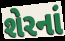
શેરનાં